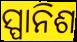
ସ୍ପାନିଶ